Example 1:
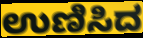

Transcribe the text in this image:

ಉಣಿಸಿದ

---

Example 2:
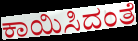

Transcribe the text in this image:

ಕಾಯಿಸಿದಂತೆ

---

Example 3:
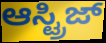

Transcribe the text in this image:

ಆಸ್ಟ್ರಿಜ್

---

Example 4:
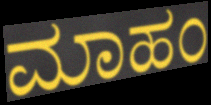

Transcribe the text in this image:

ಮಾಹಂ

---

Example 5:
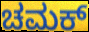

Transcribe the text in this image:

ಚಮಕ್